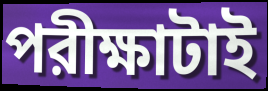
পরীক্ষাটাই